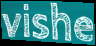
vishe